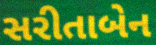
સરીતાબેન